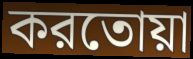
করতোয়া